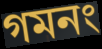
গমনং